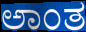
ಅಾಂತ